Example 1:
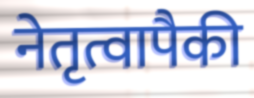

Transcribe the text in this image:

नेतृत्वापैकी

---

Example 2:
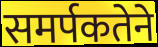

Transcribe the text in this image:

समर्पकतेने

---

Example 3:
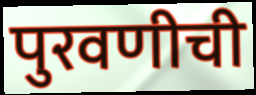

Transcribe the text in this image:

पुरवणीची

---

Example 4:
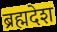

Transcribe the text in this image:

ब्रह्मदेश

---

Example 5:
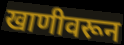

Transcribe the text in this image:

खाणीवरून